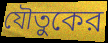
যৌতুকের